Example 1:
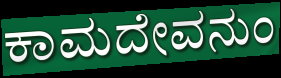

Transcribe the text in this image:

ಕಾಮದೇವನುಂ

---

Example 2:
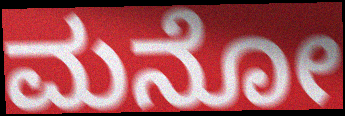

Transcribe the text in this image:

ಮನೋ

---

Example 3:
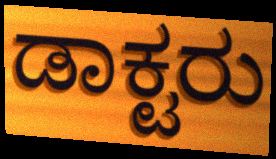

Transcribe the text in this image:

ಡಾಕ್ಟರು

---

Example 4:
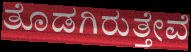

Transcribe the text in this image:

ತೊಡಗಿರುತ್ತೇವೆ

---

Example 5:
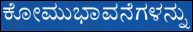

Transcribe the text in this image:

ಕೋಮುಭಾವನೆಗಳನ್ನು